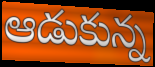
ఆడుకున్న